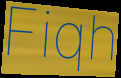
Fiqh